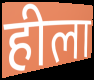
हीला